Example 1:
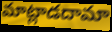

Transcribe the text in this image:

మాట్లాడదామా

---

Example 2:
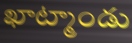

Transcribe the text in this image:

ఖాట్మాండు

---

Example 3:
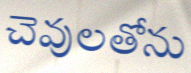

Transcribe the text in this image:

చెవులతోను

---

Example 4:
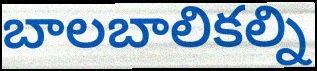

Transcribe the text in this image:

బాలబాలికల్ని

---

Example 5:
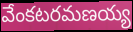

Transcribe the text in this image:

వేంకటరమణయ్య